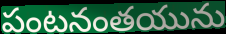
పంటనంతయును